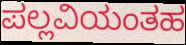
ಪಲ್ಲವಿಯಂತಹ